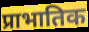
प्राभातिक